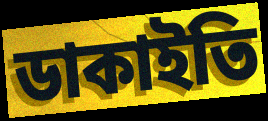
ডাকাইতি